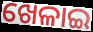
ଖେଳାଇ